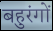
बहुरंगों